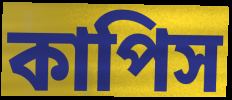
কাপিস